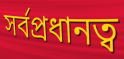
সর্বপ্রধানত্ব